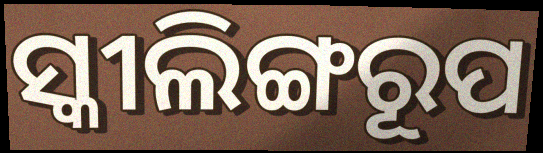
ସ୍କୀଲିଙ୍ଗରୂପ